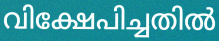
വിക്ഷേപിച്ചതിൽ